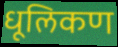
धूलिकण